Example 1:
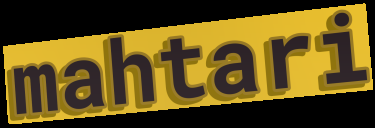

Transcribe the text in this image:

mahtari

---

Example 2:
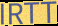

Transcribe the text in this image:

IRTT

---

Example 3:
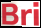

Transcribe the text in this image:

Bri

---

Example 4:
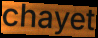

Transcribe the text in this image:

chayet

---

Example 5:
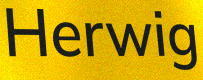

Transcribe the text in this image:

Herwig